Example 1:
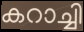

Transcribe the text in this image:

കറാച്ചി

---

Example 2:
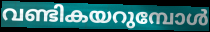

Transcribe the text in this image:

വണ്ടികയറുമ്പോൾ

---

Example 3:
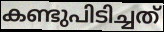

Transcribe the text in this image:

കണ്ടുപിടിച്ചത്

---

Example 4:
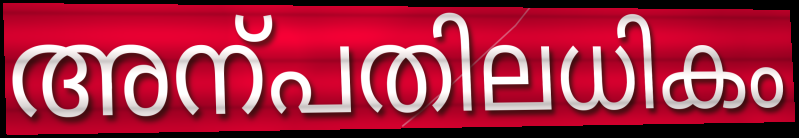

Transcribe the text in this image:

അന്പതിലധികം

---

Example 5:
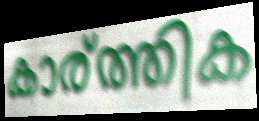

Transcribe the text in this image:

കാര്ത്തിക